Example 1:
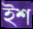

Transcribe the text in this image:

ইশ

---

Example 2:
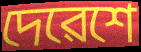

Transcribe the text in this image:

দেৱেশে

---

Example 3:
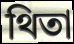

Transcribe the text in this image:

থিতা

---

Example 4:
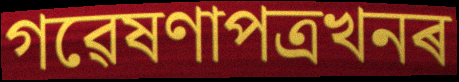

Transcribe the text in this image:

গৱেষণাপত্ৰখনৰ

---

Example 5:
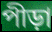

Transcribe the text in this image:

পীড়া